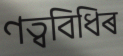
ণত্ববিধিৰ